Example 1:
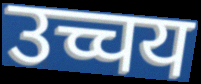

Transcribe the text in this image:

उच्चय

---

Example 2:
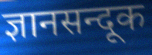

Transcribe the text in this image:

ज्ञानसन्दूक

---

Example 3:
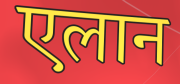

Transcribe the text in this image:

एलान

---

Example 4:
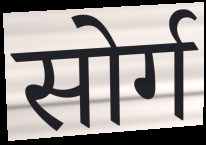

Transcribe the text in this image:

सोर्ग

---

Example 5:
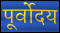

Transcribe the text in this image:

पूर्वोदय